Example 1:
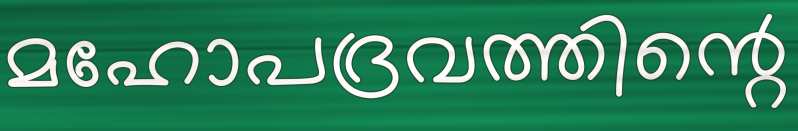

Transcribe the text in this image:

മഹോപദ്രവത്തിന്റെ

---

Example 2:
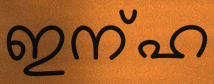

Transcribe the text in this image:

ഇന്ഹ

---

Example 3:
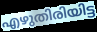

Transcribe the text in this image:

എഴുതിരിയിട്ട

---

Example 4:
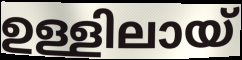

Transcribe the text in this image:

ഉള്ളിലായ്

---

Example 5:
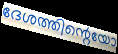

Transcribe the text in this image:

ദേശത്തിന്റെയോ